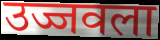
उज्जवला